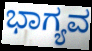
ಭಾಗ್ಯವ